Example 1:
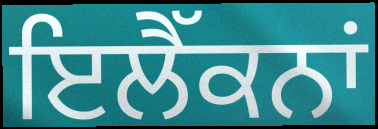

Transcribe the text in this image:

ਇਲੈੱਕਨਾਂ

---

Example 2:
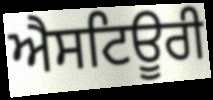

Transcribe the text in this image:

ਐਸਟਿਊਰੀ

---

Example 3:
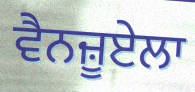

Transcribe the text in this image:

ਵੈਨਜ਼ੂਏਲਾ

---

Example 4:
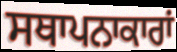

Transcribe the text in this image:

ਸਥਾਪਨਾਕਾਰਾਂ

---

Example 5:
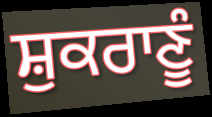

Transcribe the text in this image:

ਸ਼ੁਕਰਾਣੂੰ